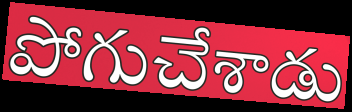
పోగుచేశాడు